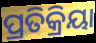
ପ୍ରତିକ୍ରିୟା